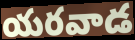
యరవాడ